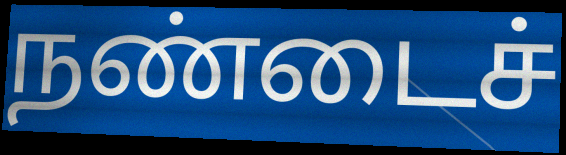
நண்டைச்